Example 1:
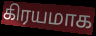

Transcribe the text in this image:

கிரயமாக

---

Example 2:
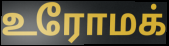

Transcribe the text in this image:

உரோமக்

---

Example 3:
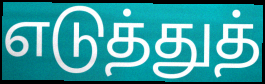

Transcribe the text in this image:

எடுத்துத்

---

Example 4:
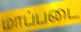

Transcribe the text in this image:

மாப்படை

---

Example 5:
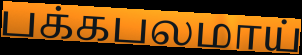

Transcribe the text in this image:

பக்கபலமாய்